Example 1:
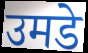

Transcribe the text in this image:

उमडे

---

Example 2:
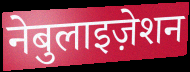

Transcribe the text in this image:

नेबुलाइज़ेशन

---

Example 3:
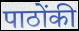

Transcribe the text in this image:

पाठोंकी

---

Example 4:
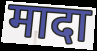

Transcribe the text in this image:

मादा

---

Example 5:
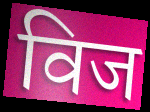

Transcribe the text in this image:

विज